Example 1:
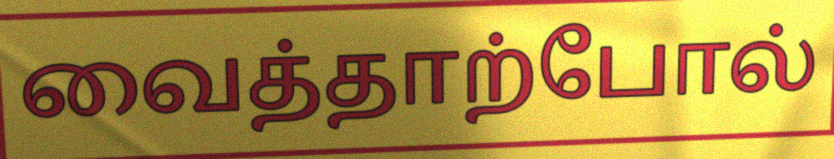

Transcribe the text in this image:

வைத்தாற்போல்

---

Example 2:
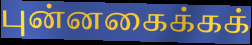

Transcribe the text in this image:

புன்னகைக்கக்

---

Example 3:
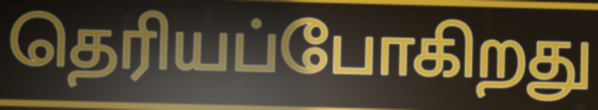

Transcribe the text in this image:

தெரியப்போகிறது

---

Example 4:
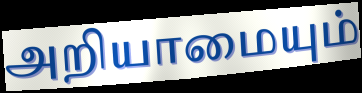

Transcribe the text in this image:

அறியாமையும்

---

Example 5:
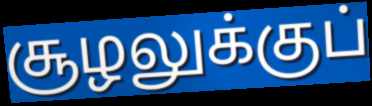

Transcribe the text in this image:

சூழலுக்குப்